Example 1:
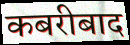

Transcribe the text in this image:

कबरीबाद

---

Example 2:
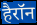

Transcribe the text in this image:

हैरॉन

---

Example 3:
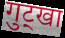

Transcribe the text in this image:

गुट्खा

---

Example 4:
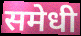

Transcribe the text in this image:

समेधी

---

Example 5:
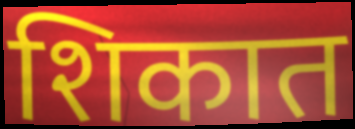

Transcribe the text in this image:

शिकात